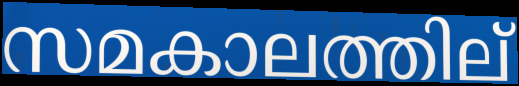
സമകാലത്തില്